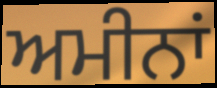
ਅਮੀਨਾਂ